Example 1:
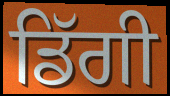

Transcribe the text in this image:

ਡਿੱਗੀ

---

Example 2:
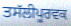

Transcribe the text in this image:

ਤਸੱਲੀਪੂਰਵਕ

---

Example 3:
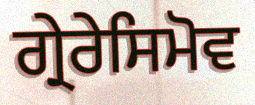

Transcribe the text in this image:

ਗ੍ਰੇਰੇਸਿਮੋਵ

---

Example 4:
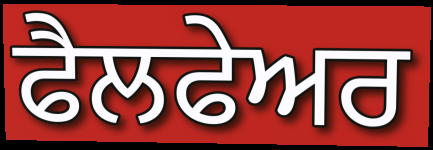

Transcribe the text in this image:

ਫੈਲਫੇਅਰ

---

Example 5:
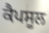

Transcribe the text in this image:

ਕੈਪਸੂਲ